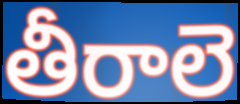
తీరాలె